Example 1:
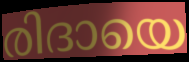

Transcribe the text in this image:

രിദായെ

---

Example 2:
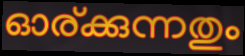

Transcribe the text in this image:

ഓര്ക്കുന്നതും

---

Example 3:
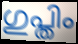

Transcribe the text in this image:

ഗുപ്തിം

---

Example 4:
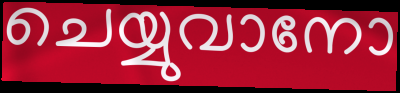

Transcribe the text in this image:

ചെയ്യുവാനോ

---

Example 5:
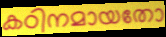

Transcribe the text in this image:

കഠിനമായതോ